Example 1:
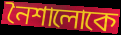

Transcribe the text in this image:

নৈশালোকে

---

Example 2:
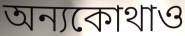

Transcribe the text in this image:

অন্যকোথাও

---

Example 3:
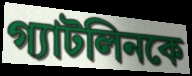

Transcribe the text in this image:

গ্যাটলিনকে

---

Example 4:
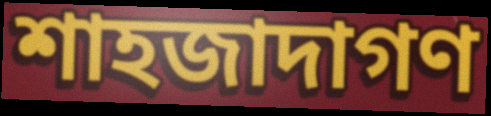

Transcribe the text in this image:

শাহজাদাগণ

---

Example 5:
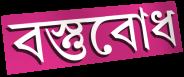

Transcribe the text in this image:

বস্তুবোধ